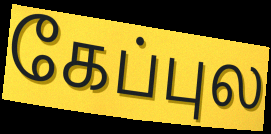
கேப்புல